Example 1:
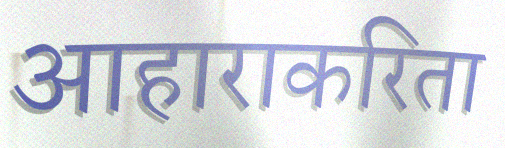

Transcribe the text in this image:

आहाराकरिता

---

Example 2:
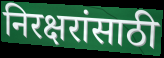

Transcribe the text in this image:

निरक्षरांसाठी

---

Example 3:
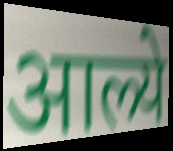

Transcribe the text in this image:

आल्ये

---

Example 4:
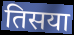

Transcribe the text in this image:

तिसया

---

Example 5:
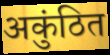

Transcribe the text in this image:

अकुंठित